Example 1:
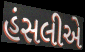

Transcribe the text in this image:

હંસલીએ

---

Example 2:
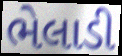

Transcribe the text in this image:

ભેલાડી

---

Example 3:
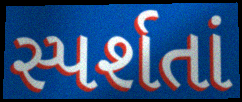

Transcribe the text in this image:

સ્પર્શતાં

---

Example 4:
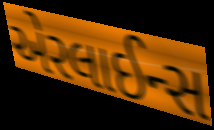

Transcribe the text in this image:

એરલાઈન્સ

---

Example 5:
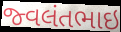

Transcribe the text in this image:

જ્વલંતભાઇ